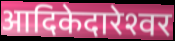
आदिकेदारेश्वर